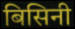
बिसिनी